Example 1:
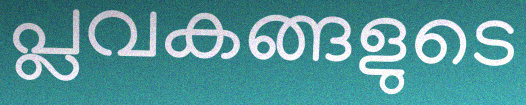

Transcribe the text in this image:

പ്ലവകങ്ങളുടെ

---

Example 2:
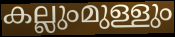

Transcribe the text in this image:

കല്ലുംമുള്ളും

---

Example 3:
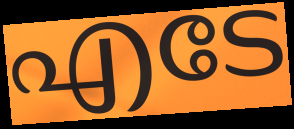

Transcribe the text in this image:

എടേ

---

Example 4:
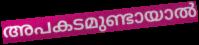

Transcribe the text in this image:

അപകടമുണ്ടായാൽ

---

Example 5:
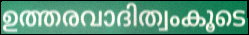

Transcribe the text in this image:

ഉത്തരവാദിത്വംകൂടെ